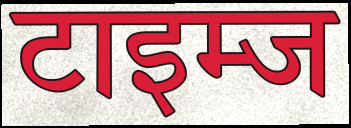
टाइम्ज